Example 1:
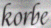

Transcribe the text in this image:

korbe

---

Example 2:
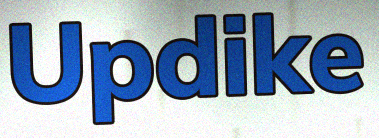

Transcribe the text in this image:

Updike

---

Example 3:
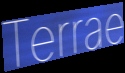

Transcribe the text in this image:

Terrae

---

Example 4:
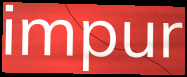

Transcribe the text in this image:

impur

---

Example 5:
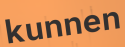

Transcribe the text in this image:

kunnen